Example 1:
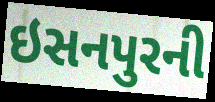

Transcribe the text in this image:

ઇસનપુરની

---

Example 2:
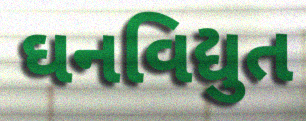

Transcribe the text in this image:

ઘનવિદ્યુત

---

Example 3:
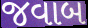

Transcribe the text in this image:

જવાબ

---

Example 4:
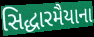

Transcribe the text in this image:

સિદ્ધારમૈયાના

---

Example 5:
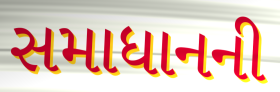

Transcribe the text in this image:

સમાધાનની